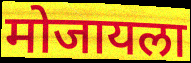
मोजायला